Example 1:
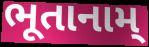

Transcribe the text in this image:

ભૂતાનામ્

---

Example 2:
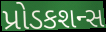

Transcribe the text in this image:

પ્રોડકશન્સ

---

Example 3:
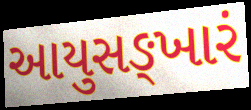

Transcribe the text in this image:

આયુસઙ્ખારં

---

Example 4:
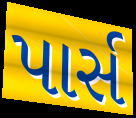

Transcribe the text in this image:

પાર્સ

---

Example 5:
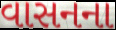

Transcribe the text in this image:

વાસનના